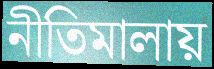
নীতিমালায়